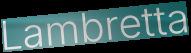
Lambretta